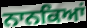
ਨਾਨਕਿਆਂ